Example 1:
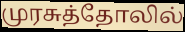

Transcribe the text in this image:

முரசுத்தோலில்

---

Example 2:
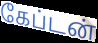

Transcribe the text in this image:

கேப்டன்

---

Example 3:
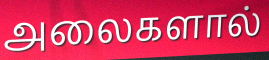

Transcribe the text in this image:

அலைகளால்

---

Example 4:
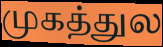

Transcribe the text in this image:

முகத்துல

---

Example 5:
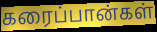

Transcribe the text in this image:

கரைப்பான்கள்